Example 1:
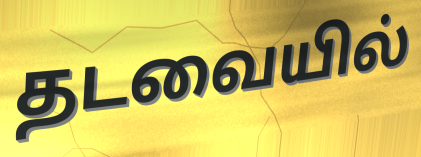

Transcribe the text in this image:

தடவையில்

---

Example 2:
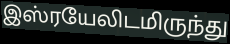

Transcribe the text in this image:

இஸ்ரயேலிடமிருந்து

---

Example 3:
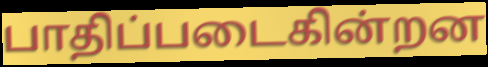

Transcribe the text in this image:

பாதிப்படைகின்றன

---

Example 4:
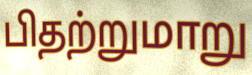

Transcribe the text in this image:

பிதற்றுமாறு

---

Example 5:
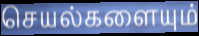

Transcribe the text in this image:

செயல்களையும்